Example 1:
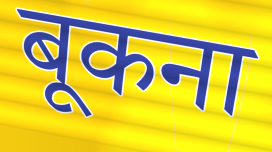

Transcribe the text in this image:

बूकना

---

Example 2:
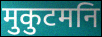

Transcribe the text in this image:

मुकुटमनि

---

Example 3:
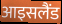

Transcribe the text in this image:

आइसलैंड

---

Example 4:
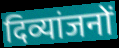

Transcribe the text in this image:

दिव्यांजनों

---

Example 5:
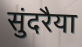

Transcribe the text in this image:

सुंदरैया